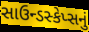
સાઉન્ડસ્કેપ્સનું